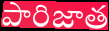
పారిజాత